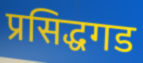
प्रसिद्धगड